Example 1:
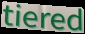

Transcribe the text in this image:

tiered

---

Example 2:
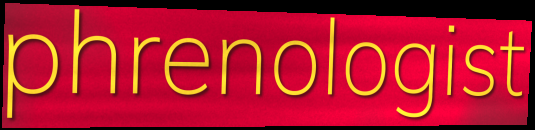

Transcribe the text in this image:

phrenologist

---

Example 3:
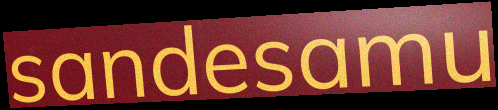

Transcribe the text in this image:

sandesamu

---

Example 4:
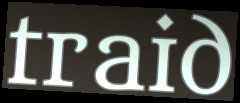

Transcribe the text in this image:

traid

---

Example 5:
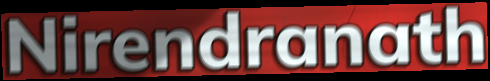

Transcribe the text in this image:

Nirendranath